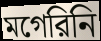
মগেরিনি